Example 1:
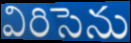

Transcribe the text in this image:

విరిసెను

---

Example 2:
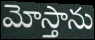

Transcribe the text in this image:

మోస్తాను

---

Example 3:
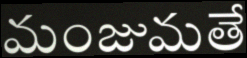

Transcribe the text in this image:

మంజుమతే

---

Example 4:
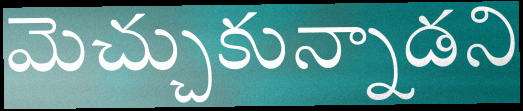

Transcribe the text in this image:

మెచ్చుకున్నాడని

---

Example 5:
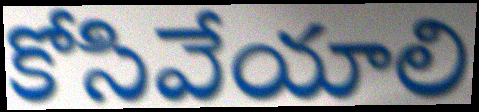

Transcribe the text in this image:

కోసివేయాలి